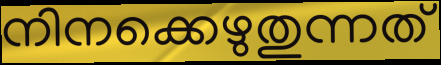
നിനക്കെഴുതുന്നത്